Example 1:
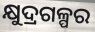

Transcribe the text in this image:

କ୍ଷୁଦ୍ରଗଳ୍ପର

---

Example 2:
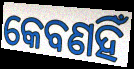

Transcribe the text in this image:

କେବଣହିଁ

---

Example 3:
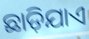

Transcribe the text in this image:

ଛାଡ଼ିଯାଏ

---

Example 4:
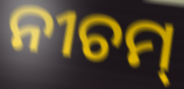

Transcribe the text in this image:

ନୀଚମ୍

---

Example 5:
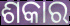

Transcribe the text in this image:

ଶକାର